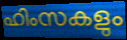
ഹിംസകളും